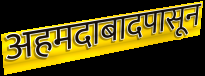
अहमदाबादपासून